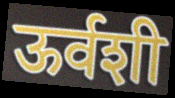
ऊर्वशी